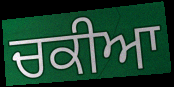
ਚਕੀਆ